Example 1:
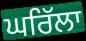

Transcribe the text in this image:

ਘਰਿੱਲਾ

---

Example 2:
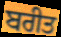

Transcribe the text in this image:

ਬਰੀਤ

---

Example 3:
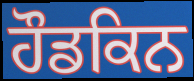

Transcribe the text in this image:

ਹੌਡਕਿਨ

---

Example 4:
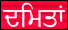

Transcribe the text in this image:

ਦਮਿਤਾਂ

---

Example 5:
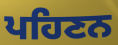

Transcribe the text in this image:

ਪਹਿਣਨ